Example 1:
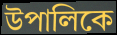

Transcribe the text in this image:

উপালিকে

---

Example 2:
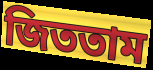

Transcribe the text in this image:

জিততাম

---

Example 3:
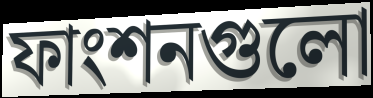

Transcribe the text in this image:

ফাংশনগুলো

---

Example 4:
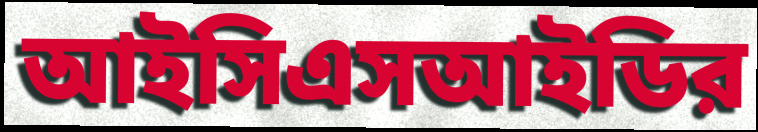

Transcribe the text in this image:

আইসিএসআইডির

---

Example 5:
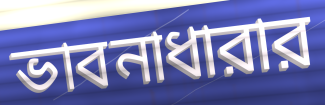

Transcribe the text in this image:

ভাবনাধারার